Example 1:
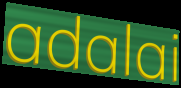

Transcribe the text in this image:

adalai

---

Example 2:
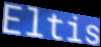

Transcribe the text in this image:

Eltis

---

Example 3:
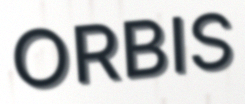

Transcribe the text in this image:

ORBIS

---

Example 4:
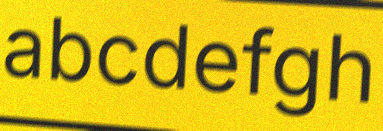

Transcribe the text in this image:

abcdefgh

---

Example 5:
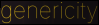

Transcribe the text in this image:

genericity